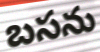
బసను